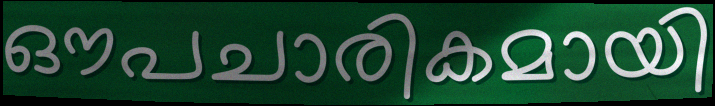
ഔപചാരികമായി